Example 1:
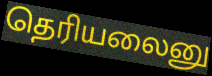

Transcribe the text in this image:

தெரியலைனு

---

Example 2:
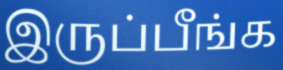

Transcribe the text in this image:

இருப்பீங்க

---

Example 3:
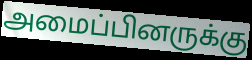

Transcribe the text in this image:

அமைப்பினருக்கு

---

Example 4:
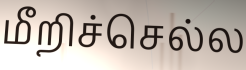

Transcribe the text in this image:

மீறிச்செல்ல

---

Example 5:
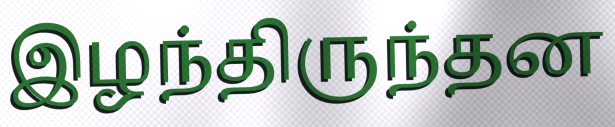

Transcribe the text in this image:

இழந்திருந்தன